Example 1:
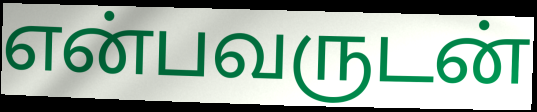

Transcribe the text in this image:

என்பவருடன்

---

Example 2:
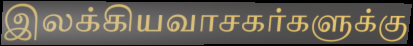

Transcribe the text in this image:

இலக்கியவாசகர்களுக்கு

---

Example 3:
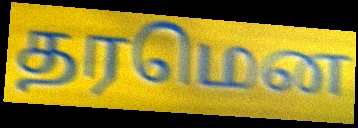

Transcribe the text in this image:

தரமென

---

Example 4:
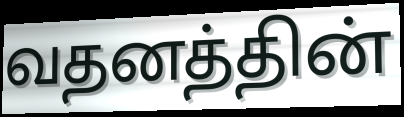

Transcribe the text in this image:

வதனத்தின்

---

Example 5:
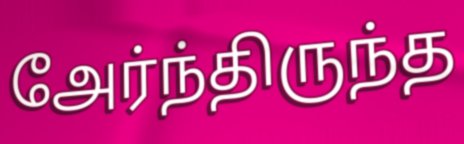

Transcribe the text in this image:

அேர்ந்திருந்த